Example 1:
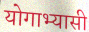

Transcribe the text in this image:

योगाभ्यासी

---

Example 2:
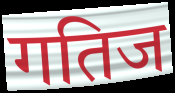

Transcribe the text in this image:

गतिज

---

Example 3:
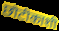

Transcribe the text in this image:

छोटीकाशी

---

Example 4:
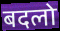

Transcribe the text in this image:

बदलो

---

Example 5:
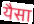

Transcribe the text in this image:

यैसा